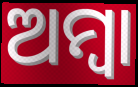
ଅମ୍ବା